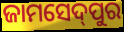
ଜାମସେଦ୍‌ପୁର